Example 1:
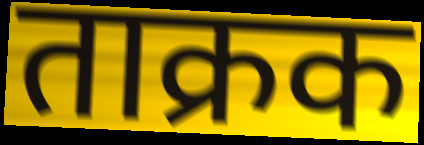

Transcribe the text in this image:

ताक्रक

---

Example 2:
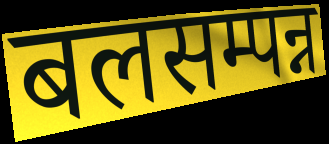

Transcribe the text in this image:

बलसम्पन्न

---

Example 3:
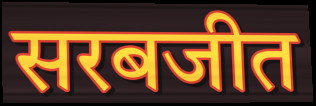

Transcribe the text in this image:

सरबजीत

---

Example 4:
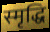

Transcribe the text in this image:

स्मृद्धि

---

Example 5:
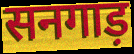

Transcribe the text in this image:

सनगाड़